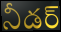
నీడర్